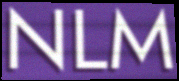
NLM